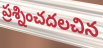
ప్రశ్నించదలచిన